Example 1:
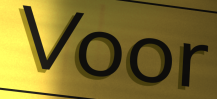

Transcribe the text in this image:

Voor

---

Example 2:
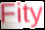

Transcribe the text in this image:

Fity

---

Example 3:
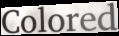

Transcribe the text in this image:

Colored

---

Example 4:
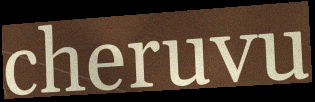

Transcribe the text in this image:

cheruvu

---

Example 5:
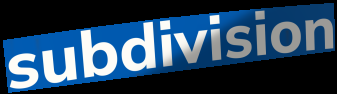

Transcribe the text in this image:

subdivision